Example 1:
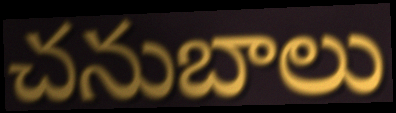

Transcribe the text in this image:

చనుబాలు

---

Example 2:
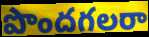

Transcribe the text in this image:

పొందగలరా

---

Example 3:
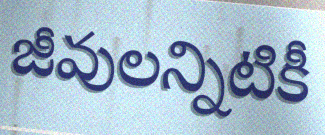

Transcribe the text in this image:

జీవులన్నిటికీ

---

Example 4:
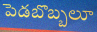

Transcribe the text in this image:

పెడబొబ్బలూ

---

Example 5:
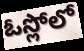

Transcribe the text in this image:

ఓస్లోలో